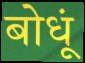
बोधूं